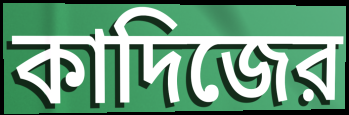
কাদিজের